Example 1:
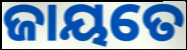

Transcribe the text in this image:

ଜାୟତେ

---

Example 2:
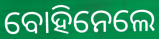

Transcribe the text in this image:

ବୋହିନେଲେ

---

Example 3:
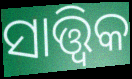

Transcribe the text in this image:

ସାତ୍ତ୍ବିକ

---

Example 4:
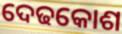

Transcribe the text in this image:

ଦେଢକୋଶ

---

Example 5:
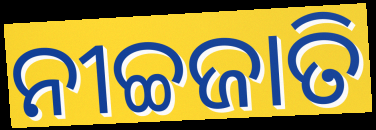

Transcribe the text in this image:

ନୀଚ୍ଚଜାତି